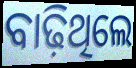
ବାଢ଼ିଥିଲେ